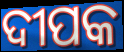
ଦୀପକ